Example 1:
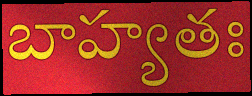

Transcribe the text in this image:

బాహ్యతః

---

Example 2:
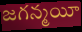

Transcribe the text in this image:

జగన్మయీ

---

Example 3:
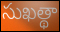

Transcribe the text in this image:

సుఖత్థా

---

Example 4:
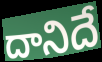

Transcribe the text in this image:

దానిదే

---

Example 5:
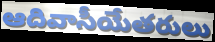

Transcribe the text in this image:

ఆదివాసీయేతరులు